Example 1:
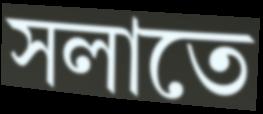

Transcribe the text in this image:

সলাতে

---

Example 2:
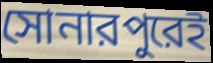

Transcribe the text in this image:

সোনারপুরেই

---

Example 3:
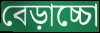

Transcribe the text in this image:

বেড়াচ্চো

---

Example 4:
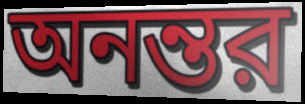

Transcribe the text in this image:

অনন্তর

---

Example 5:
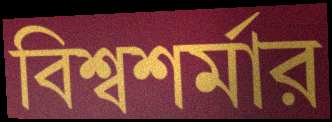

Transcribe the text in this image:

বিশ্বশর্মার